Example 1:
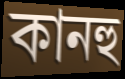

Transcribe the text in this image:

কানহু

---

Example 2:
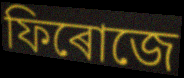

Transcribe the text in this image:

ফিৰোজে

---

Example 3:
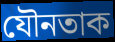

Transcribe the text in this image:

যৌনতাক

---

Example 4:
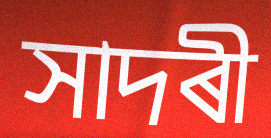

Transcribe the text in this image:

সাদৰী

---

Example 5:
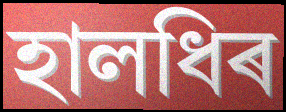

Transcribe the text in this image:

হালধিৰ